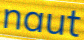
naut